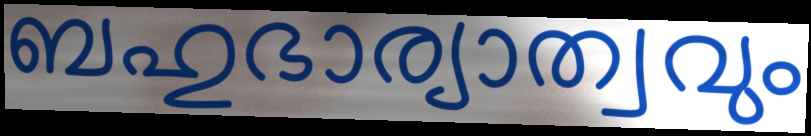
ബഹുഭാര്യാത്വവും